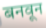
बनवून